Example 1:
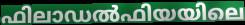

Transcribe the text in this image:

ഫിലാഡൽഫിയയിലെ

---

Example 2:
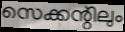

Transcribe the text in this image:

സെക്കന്റിലും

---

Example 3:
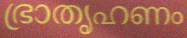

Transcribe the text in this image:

ഭ്രാതൃഹണം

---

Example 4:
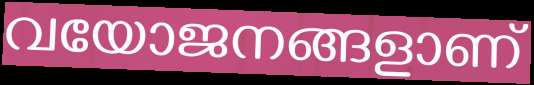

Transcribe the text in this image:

വയോജനങ്ങളാണ്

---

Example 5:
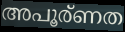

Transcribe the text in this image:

അപൂര്ണത